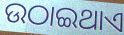
ଉଠାଇଥାଏ